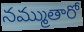
నమ్ముతారో